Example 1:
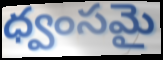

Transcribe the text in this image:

ధ్వంసమై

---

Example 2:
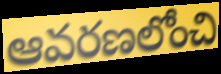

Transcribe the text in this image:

ఆవరణలోంచి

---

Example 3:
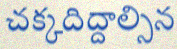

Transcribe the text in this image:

చక్కదిద్దాల్సిన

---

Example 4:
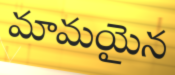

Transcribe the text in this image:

మామయైన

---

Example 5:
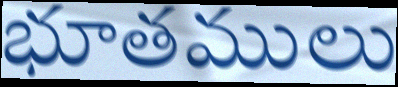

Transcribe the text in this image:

భూతములు